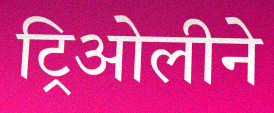
ट्रिओलीने